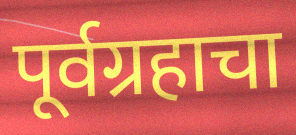
पूर्वग्रहाचा